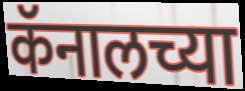
कॅनालच्या